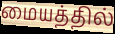
மையத்தில்